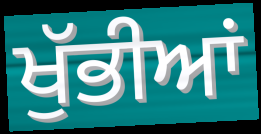
ਖੁੱਭੀਆਂ